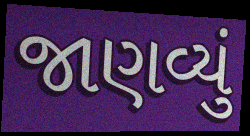
જાણવ્યું